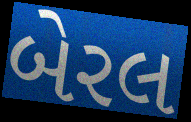
બેરલ